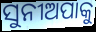
ସୁନୀଅପାକୁ